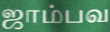
ஜாம்பவ